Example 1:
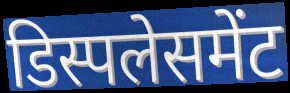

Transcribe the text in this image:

डिस्पलेसमेंट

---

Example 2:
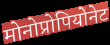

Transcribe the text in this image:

मोनोप्रोपियोनेट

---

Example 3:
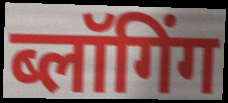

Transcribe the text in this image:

ब्लॉगिंग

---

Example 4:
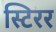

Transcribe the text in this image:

स्टिरर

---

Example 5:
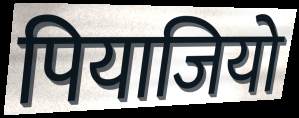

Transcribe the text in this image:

पियाजियो